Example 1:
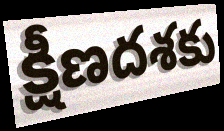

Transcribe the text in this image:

క్షీణదశకు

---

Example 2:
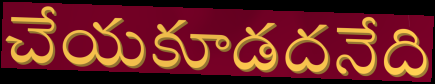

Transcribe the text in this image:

చేయకూడదనేది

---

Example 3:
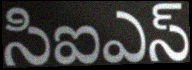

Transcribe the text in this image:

సిఐఎస్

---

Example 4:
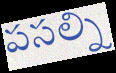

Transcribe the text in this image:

పసల్ని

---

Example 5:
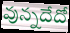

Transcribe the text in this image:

వున్నదేదో